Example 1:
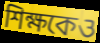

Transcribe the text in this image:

শিক্ষকেও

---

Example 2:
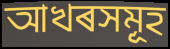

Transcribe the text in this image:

আখৰসমূহ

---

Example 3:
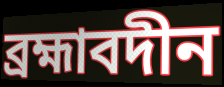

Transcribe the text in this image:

ব্ৰহ্মাবদীন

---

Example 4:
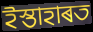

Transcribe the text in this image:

ইস্তাহাৰত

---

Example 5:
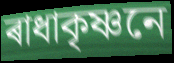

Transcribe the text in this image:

ৰাধাকৃষ্ণনে